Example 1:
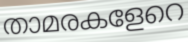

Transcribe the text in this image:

താമരകളേറെ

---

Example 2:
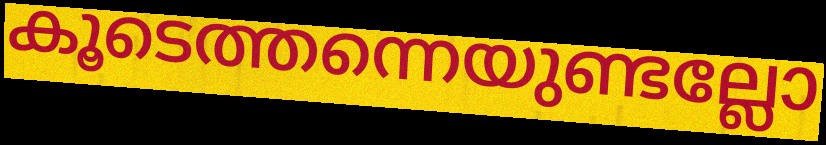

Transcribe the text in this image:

കൂടെത്തന്നെയുണ്ടല്ലോ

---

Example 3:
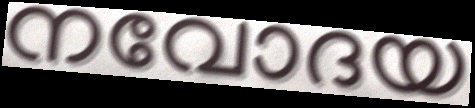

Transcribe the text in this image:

നവോദയ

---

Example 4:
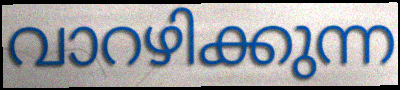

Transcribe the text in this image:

വാറഴിക്കുന്ന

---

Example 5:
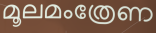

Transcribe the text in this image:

മൂലമംത്രേണ